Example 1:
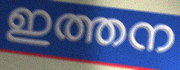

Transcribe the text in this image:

ഇത്തന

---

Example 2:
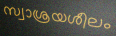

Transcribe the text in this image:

സ്വാശ്രയശീലം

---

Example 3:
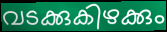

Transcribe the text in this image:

വടക്കുകിഴക്കും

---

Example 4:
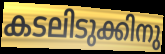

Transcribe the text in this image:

കടലിടുക്കിനു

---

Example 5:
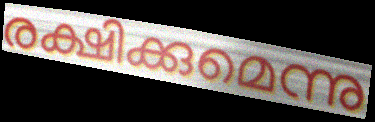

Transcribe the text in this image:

രക്ഷിക്കുമെന്നു